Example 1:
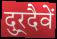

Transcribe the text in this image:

दुर्दैवें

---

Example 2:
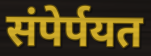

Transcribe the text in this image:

संपेर्पयत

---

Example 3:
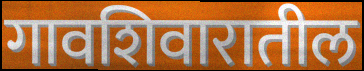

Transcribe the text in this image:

गावशिवारातील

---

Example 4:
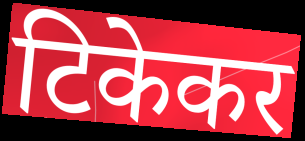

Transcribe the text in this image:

टिकेकर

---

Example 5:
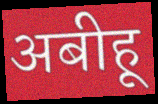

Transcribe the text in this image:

अबीहू